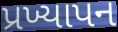
પ્રખ્યાપન